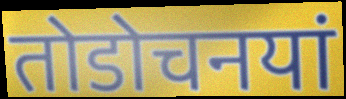
तोडोचनयां